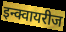
इन्क्वायरीज